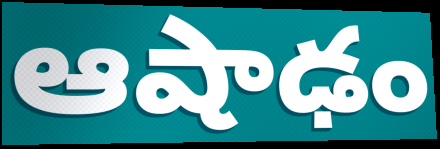
ఆషాఢం